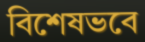
বিশেষভবে